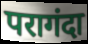
परागंदा